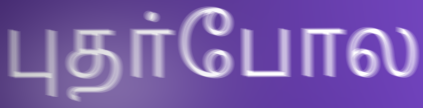
புதர்போல